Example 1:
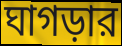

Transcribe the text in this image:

ঘাগড়ার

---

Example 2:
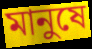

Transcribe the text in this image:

মানুষে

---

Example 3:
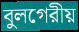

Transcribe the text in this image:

বুলগেরীয়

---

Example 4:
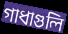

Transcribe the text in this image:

গাধাগুলি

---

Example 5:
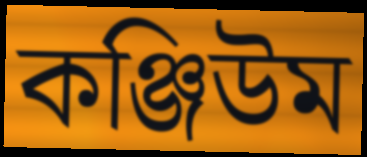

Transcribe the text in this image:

কঞ্জিউম